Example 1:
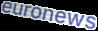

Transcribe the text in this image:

euronews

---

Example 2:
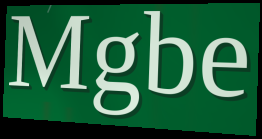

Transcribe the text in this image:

Mgbe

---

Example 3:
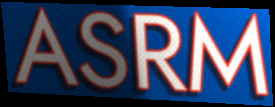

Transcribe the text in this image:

ASRM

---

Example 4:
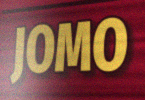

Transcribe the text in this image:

JOMO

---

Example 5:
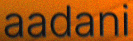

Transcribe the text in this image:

aadani